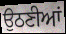
ਉਠਣੀਆਂ